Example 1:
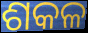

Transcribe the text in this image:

ଶକଳ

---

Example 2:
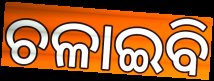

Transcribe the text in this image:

ଚଳାଇବି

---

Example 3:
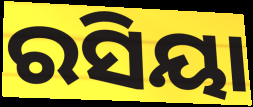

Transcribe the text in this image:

ରସିୟା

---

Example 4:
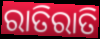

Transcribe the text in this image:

ରାତିରାତି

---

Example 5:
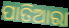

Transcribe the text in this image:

ପାତିଆରା